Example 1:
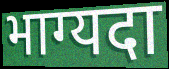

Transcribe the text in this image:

भाग्यदा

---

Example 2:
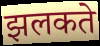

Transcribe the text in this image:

झलकते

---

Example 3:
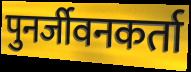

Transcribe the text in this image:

पुनर्जीवनकर्ता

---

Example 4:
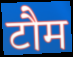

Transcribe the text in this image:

टौम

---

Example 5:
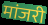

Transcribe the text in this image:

मांजरी